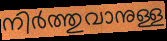
നിർത്തുവാനുള്ള